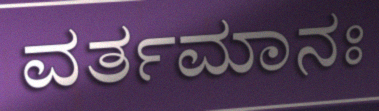
ವರ್ತಮಾನಃ